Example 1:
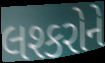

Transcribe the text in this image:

લશ્કરોને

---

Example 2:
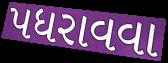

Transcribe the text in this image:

પધરાવવા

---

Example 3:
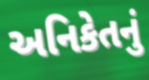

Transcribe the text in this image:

અનિકેતનું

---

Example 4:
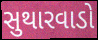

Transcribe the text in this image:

સુથારવાડો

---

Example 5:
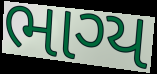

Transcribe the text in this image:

ભાગ્ય